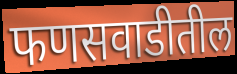
फणसवाडीतील